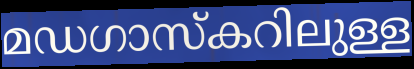
മഡഗാസ്കറിലുള്ള